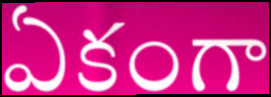
ఏకంగా